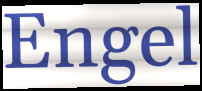
Engel